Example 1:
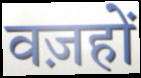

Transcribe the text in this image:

वज़हों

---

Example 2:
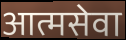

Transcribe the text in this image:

आत्मसेवा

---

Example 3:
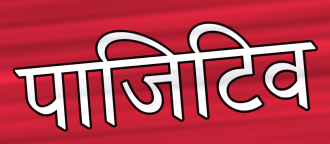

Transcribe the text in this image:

पाजिटिव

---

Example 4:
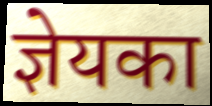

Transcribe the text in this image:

ज्ञेयका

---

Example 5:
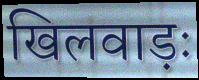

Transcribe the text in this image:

खिलवाड़ः